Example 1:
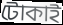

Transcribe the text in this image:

টোকাই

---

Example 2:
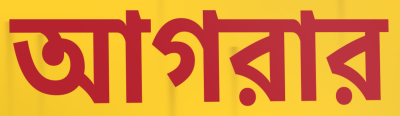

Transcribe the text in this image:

আগরার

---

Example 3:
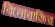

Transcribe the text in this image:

বিনোবাজির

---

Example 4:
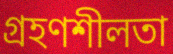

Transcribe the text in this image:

গ্রহণশীলতা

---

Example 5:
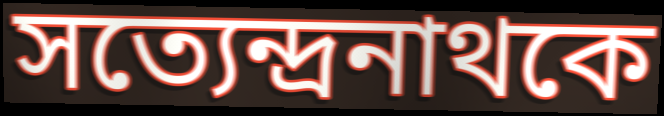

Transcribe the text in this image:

সত্যেন্দ্রনাথকে